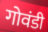
गोवंडी